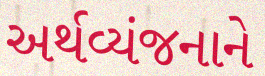
અર્થવ્યંજનાને